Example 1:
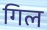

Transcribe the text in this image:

गिल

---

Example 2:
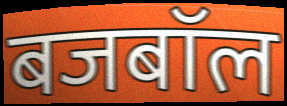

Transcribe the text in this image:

बजबॉल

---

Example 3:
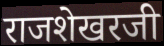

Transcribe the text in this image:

राजशेखरजी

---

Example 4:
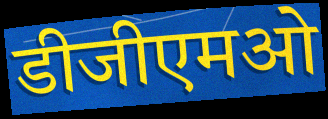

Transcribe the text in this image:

डीजीएमओ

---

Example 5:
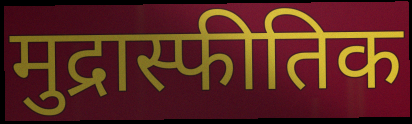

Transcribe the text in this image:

मुद्रास्फीतिक